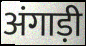
अंगाड़ी